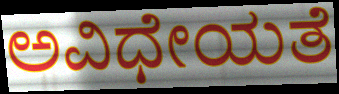
ಅವಿಧೇಯತೆ